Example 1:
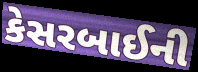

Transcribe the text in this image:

કેસરબાઈની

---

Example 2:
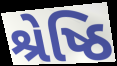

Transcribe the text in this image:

શ્રેષ્ઠિ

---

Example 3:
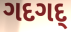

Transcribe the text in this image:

ગદગદ્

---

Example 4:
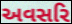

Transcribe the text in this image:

અવસરિ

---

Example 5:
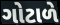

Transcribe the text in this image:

ગોટાળે